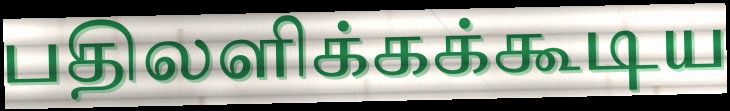
பதிலளிக்கக்கூடிய